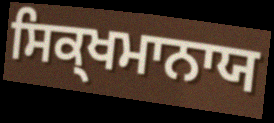
ਸਿਕ੍ਖਮਾਨਾਯ